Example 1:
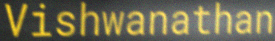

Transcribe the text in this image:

Vishwanathan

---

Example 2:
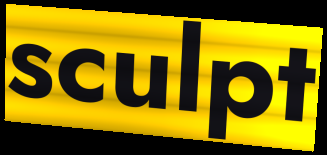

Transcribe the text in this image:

sculpt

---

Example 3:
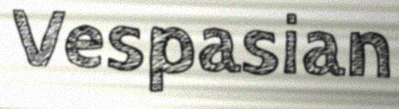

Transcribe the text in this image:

Vespasian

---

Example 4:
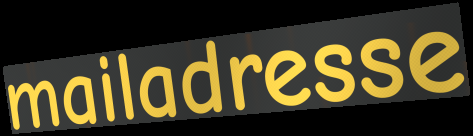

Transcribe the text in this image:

mailadresse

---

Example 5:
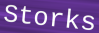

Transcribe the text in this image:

Storks